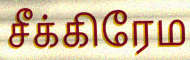
சீக்கிரேம